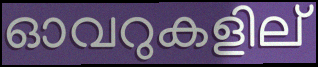
ഓവറുകളില്